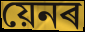
য়েনৰ